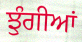
ਝੁੰਗੀਆਂ